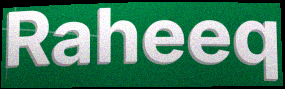
Raheeq